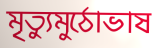
মৃত্যুমুঠোভাষ